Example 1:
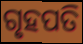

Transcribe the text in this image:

ଗୃହପତି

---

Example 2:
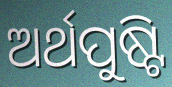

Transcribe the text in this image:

ଅର୍ଥପୁଷ୍ଟି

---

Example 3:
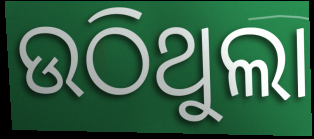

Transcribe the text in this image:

ଉଠିଥୁଲା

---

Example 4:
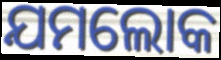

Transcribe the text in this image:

ଯମଲୋକ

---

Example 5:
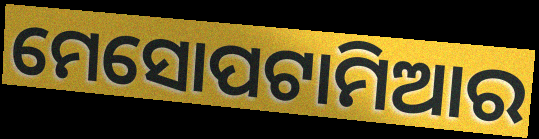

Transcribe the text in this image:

ମେସୋପଟାମିଆର